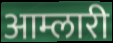
आम्लारी